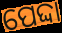
ପେଦ୍ଦା